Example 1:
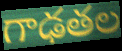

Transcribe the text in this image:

గాఢతల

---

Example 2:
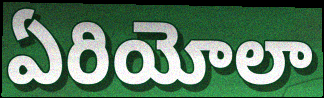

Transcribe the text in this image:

ఏరియోలా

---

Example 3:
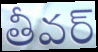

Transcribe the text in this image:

తీవర్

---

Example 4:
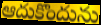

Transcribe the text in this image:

ఆదుకొందును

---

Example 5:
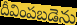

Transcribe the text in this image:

దీవింపబడెను